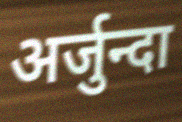
अर्जुन्दा